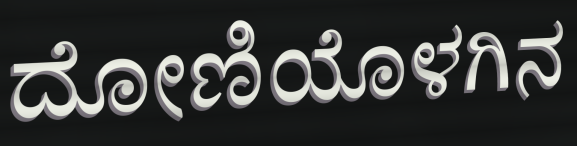
ದೋಣಿಯೊಳಗಿನ